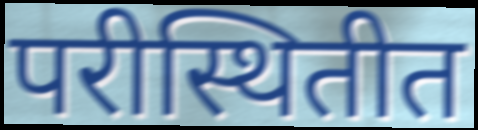
परीस्थितीत